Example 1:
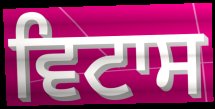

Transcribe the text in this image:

ਵਿਟਾਸ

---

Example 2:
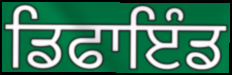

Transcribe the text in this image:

ਡਿਫਾਇੰਡ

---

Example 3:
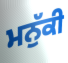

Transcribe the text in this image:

ਮਨੁੱਕੀ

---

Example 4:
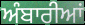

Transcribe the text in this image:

ਅੰਬਾਰੀਆਂ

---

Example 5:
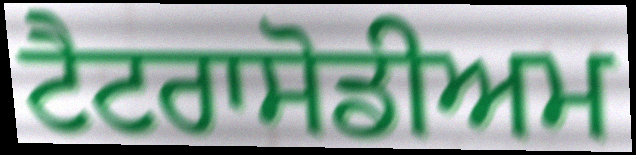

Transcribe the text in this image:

ਟੈਟਰਾਸੋਡੀਅਮ